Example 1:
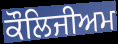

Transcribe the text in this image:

ਕੌਲਿਜੀਅਮ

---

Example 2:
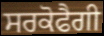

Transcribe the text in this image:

ਸਰਕੋਫੈਗੀ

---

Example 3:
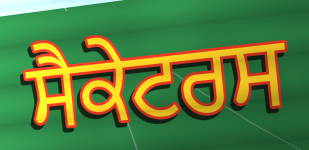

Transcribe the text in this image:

ਸੈਕੇਟਰਸ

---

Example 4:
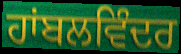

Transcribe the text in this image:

ਹਾਂਬਲਵਿੰਦਰ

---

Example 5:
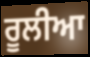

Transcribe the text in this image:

ਰੂਲੀਆ